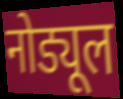
नोड्यूल